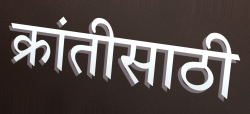
क्रांतीसाठी